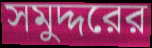
সমুদ্দরের